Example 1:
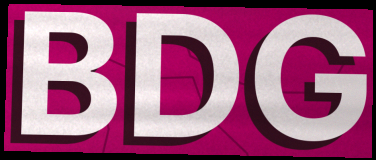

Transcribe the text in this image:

BDG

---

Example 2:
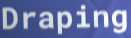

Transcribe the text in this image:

Draping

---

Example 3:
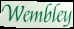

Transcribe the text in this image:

Wembley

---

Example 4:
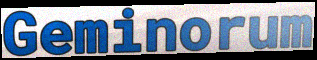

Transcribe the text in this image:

Geminorum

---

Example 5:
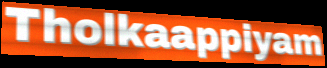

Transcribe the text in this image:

Tholkaappiyam